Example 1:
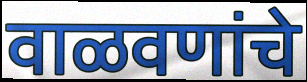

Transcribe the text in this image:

वाळवणांचे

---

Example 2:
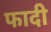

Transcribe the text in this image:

फादी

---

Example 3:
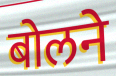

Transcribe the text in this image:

बोलने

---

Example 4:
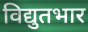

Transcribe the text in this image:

विद्युतभार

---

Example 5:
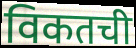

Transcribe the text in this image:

विकतची